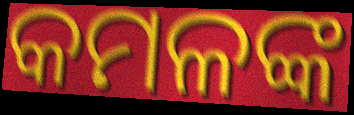
କମଳଙ୍କ